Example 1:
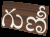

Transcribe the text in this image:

గుణీ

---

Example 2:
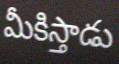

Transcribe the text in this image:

మీకిస్తాడు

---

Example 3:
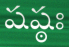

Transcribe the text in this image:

షష్ఠః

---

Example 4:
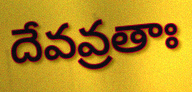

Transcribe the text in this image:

దేవవ్రతాః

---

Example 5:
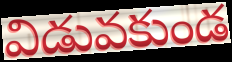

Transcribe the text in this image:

విడువకుండ